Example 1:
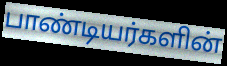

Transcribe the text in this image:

பாண்டியர்களின்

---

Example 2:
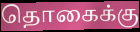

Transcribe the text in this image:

தொகைக்கு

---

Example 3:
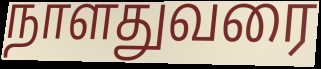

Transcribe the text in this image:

நாளதுவரை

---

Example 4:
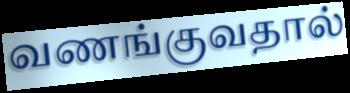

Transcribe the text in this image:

வணங்குவதால்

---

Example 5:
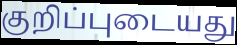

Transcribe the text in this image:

குறிப்புடையது